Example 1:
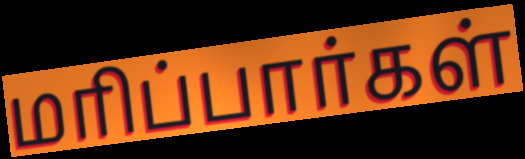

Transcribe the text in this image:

மரிப்பார்கள்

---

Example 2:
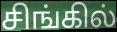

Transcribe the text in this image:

சிங்கில்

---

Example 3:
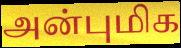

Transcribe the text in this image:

அன்புமிக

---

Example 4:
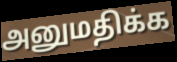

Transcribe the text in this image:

அனுமதிக்க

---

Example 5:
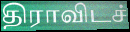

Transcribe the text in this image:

திராவிடச்